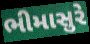
ભીમાસુરે